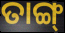
ତାଙ୍ଗ୍